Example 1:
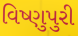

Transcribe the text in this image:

વિષ્ણુપુરી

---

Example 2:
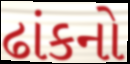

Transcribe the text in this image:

ઢાંકનો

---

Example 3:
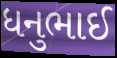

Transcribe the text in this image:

ધનુભાઈ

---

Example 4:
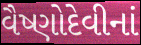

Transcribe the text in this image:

વૈષ્ણોદેવીનાં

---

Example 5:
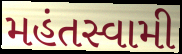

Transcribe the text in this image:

મહંતસ્વામી